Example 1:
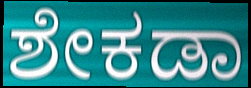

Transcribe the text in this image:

ಶೇಕಡಾ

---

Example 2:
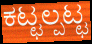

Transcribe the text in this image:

ಕಟ್ಟಲ್ಪಟ್ಟ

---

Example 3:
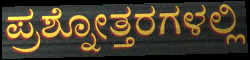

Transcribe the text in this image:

ಪ್ರಶ್ನೋತ್ತರಗಳಲ್ಲಿ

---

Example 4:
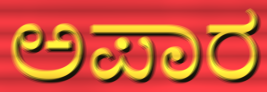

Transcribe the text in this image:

ಅಪಾರ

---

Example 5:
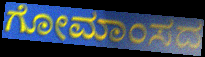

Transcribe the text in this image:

ಗೋಮಾಂಸದ